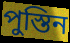
পুস্তিন